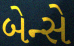
બેન્સે